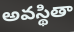
అవస్థితా